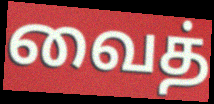
வைத்